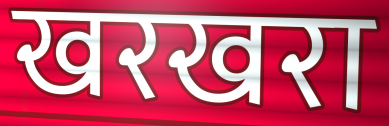
खरखरा